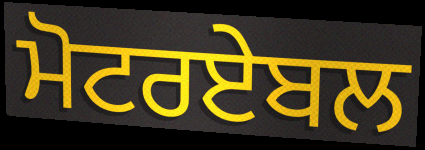
ਮੋਟਰਏਬਲ